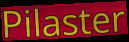
Pilaster